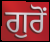
ਗੁਰੋਂ